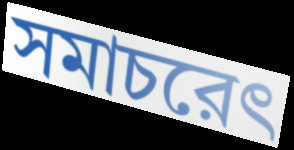
সমাচরেৎ